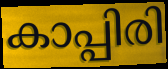
കാപ്പിരി